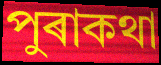
পুৰাকথা